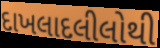
દાખલાદલીલોથી